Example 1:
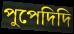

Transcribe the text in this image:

পুপেদিদি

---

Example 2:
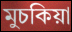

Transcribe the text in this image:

মুচকিয়া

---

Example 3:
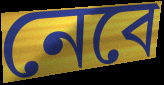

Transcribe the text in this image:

নেবে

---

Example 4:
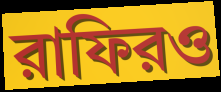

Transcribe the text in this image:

রাফিরও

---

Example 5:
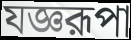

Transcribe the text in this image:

যজ্ঞরূপা